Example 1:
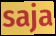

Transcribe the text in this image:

saja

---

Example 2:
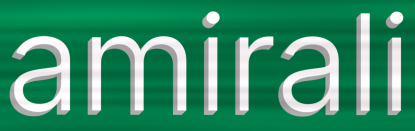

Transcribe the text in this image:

amirali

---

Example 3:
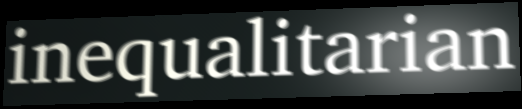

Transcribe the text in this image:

inequalitarian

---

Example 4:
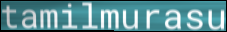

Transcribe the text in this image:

tamilmurasu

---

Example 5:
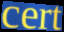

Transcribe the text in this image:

cert